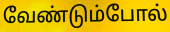
வேண்டும்போல்